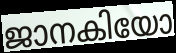
ജാനകിയോ